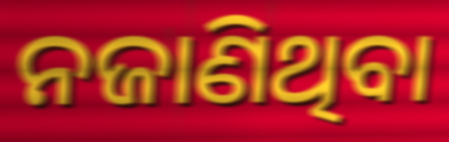
ନଜାଣିଥିବା